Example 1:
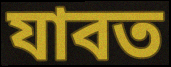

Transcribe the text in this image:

যাবত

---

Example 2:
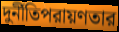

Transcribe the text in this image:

দুর্নীতিপরায়ণতার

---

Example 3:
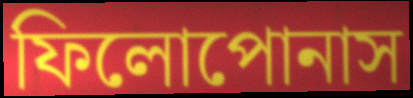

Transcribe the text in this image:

ফিলোপোনাস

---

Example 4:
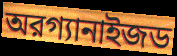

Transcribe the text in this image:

অরগ্যানাইজড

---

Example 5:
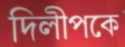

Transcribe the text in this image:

দিলীপকে